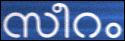
സീറം